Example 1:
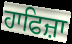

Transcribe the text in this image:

ਹਾਫਿਜ਼ਾ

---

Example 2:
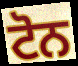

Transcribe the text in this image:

ਟੋਨ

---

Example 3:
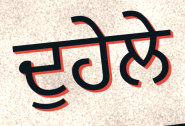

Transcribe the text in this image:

ਦੁਹੇਲੇ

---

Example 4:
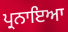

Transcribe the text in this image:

ਪ੍ਰਨਾਇਆ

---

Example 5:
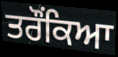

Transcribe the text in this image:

ਤਰੌਂਕਿਆ